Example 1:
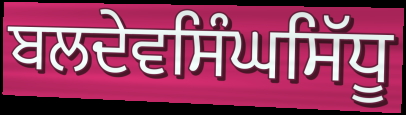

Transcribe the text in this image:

ਬਲਦੇਵਸਿੰਘਸਿੱਧੂ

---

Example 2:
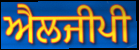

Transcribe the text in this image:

ਐਲਜੀਪੀ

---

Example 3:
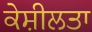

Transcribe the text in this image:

ਕੇਸ਼ੀਲਤਾ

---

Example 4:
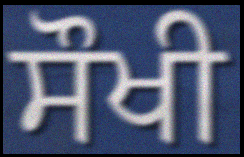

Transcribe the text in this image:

ਸੌਖੀ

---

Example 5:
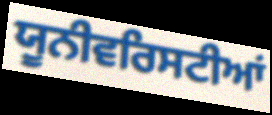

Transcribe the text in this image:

ਯੂਨੀਵਰਿਸਟੀਆਂ